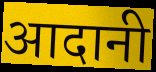
आदानी